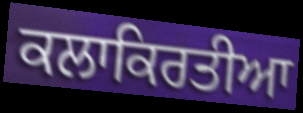
ਕਲਾਕਿਰਤੀਆ